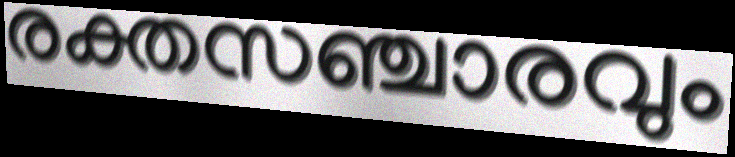
രക്തസഞ്ചാരവും